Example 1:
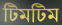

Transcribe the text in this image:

টিমটিম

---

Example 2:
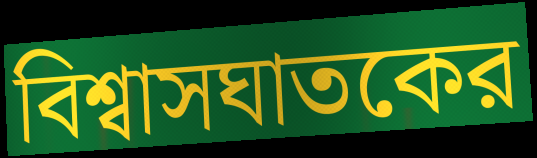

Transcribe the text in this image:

বিশ্বাসঘাতকের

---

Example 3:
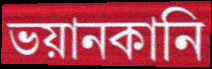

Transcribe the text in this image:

ভয়ানকানি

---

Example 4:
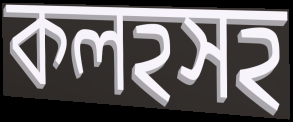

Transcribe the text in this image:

কলহসহ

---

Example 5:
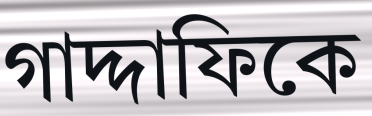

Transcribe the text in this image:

গাদ্দাফিকে